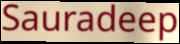
Sauradeep